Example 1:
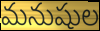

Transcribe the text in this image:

మనుషుల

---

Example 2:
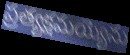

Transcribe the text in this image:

ప్రత్యక్షమయ్యెను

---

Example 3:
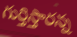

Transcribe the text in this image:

గుర్తిస్తారన్న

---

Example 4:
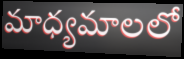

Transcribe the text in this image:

మాధ్యమాలలో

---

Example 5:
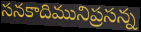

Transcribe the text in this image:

సనకాదిమునిప్రసన్న